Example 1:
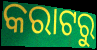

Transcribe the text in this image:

କରାଟରୁ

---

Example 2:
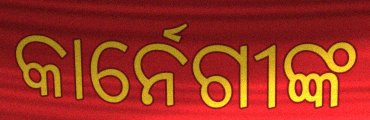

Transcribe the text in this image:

କାର୍ନେଗୀଙ୍କ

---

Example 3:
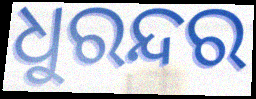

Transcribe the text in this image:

ଧୁରନ୍ଦର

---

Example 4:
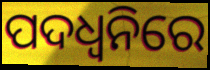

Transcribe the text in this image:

ପଦଧ୍ୱନିରେ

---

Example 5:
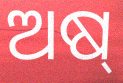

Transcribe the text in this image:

ଅଷ୍